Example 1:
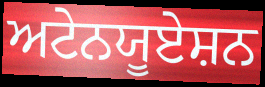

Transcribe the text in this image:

ਅਟੇਨਯੂਏਸ਼ਨ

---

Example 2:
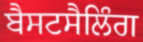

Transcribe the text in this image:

ਬੈਸਟਸੈਲਿੰਗ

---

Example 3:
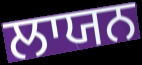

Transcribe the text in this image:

ਲਾਯਨ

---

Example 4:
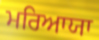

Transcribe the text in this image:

ਮਰਿਆਯਾ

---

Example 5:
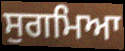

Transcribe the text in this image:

ਸੁਗਮਿਆ